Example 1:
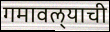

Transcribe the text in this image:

गमावल्याची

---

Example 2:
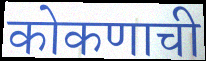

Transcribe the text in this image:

कोकणाची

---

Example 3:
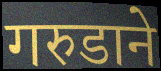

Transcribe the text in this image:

गरुडाने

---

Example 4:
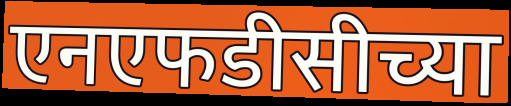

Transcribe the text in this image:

एनएफडीसीच्या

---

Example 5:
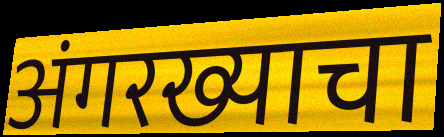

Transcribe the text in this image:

अंगरख्याचा